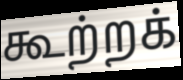
கூற்றக்